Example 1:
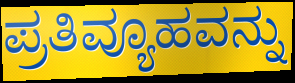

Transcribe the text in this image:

ಪ್ರತಿವ್ಯೂಹವನ್ನು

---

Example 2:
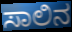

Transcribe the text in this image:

ಸಾಲಿನ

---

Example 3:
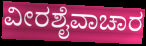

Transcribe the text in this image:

ವೀರಶೈವಾಚಾರ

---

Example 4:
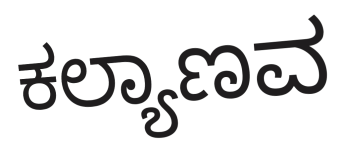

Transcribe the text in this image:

ಕಲ್ಯಾಣವ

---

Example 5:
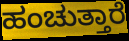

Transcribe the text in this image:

ಹಂಚುತ್ತಾರೆ